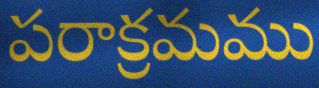
పరాక్రమము